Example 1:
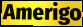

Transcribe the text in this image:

Amerigo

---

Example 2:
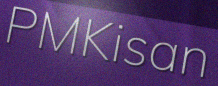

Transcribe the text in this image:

PMKisan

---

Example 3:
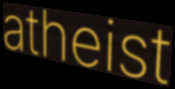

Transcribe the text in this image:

atheist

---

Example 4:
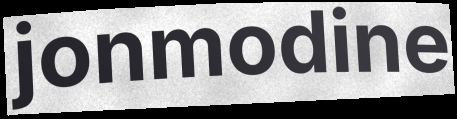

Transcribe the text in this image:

jonmodine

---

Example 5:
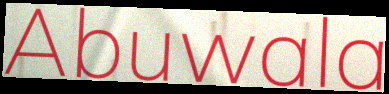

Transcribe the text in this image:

Abuwala